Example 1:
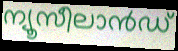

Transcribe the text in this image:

ന്യൂസീലാൻഡ്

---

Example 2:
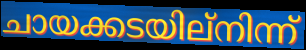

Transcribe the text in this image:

ചായക്കടയില്നിന്ന്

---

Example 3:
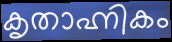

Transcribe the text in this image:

കൃതാഹ്നികം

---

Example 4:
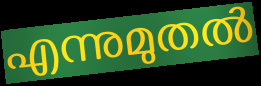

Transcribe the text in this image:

എന്നുമുതൽ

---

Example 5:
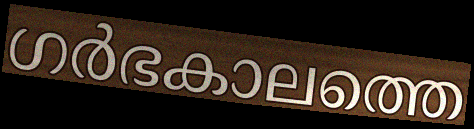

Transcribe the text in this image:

ഗർഭകാലത്തെ